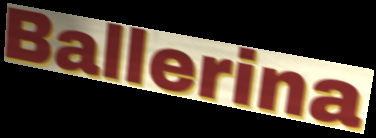
Ballerina